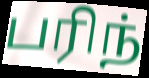
பரிந்